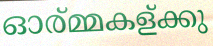
ഓര്മ്മകള്ക്കു